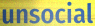
unsocial